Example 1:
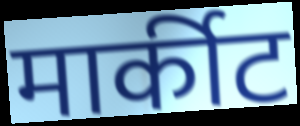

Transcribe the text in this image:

मार्कीट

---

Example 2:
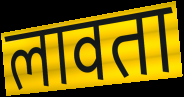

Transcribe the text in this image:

लावता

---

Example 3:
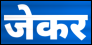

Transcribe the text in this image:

जेकर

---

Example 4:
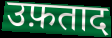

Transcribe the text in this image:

उफ़ताद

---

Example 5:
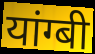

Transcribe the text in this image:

यांग्बी